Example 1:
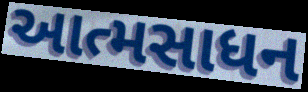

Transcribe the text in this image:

આત્મસાધન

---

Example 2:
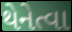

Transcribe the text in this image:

થેનેત્વા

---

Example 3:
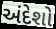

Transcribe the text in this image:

અંદેશો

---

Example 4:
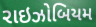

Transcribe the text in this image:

રાઇઝોબિયમ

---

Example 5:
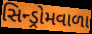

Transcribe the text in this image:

સિન્ડ્રોમવાળા